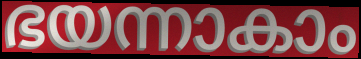
ഭയന്നാകാം